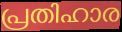
പ്രതിഹാര